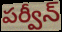
పర్వీన్